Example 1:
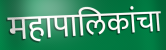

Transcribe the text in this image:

महापालिकांचा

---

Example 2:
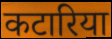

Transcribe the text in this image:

कटारिया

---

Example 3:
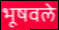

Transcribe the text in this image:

भूषवले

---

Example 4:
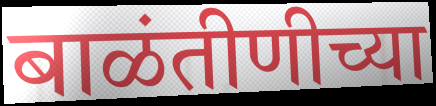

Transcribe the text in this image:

बाळंतीणीच्या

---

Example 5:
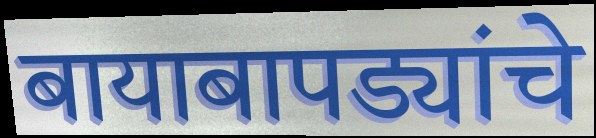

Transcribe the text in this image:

बायाबापड्यांचे